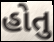
હોતુ